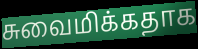
சுவைமிக்கதாக